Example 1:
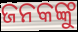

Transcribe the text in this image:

ଜନକଙ୍କୁ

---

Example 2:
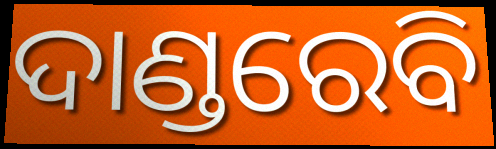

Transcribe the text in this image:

ଦାଣ୍ଡରେବି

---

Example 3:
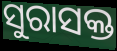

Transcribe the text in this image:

ସୁରାସକ୍ତ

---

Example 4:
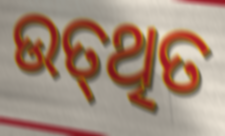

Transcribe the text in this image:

ଉତ୍‍ଥିତ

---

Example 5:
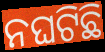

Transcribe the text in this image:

ନଘଟିଛି